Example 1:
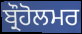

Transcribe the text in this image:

ਬ੍ਰੌਹੋਲਮਰ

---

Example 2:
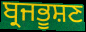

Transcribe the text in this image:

ਬ੍ਰਜਭੂਸ਼ਣ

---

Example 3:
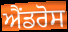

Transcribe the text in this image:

ਐਂਡਰੋਸ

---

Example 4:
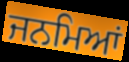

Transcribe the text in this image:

ਜਨਮਿਆਂ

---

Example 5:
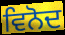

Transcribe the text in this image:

ਵਿਨੋਦ